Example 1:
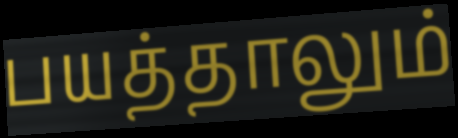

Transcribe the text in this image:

பயத்தாலும்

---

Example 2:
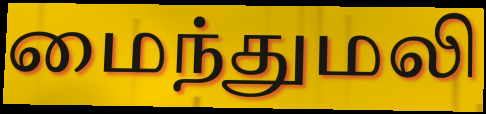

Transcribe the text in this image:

மைந்துமலி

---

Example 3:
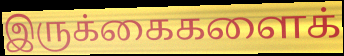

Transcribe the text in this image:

இருக்கைகளைக்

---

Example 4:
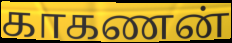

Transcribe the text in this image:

காகணன்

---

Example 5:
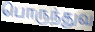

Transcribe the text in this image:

பொருந்துவ